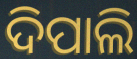
ଦିପାଲି